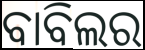
ବାବିଲର